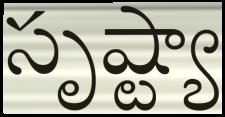
సృష్ట్యా